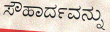
ಸೌಹಾರ್ದವನ್ನು